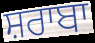
ਸ਼ਰਾਬਾ